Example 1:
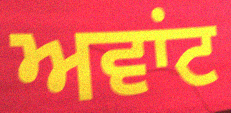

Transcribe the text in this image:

ਅਵਾਂਟ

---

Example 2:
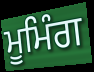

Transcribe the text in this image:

ਮੂਮਿੰਗ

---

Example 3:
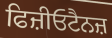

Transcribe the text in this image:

ਫਿਜ਼ੀਓਟੈਨਜ਼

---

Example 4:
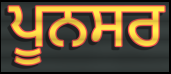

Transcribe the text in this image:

ਪੂਨਸਰ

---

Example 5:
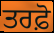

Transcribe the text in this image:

ਤਰਫ਼ੋ